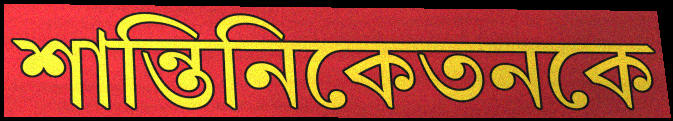
শান্তিনিকেতনকে